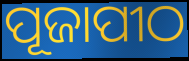
ପୂଜାପୀଠ